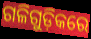
ଗଳିଗୁଡ଼ିକରେ